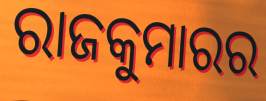
ରାଜକୁମାରର